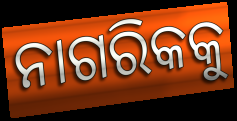
ନାଗରିକକୁ